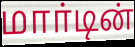
மார்டின்